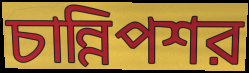
চান্নিপশর